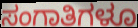
ಸಂಗಾತಿಗಳೂ